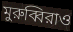
মুরুব্বিরাও